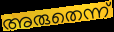
അരുതെന്ന്